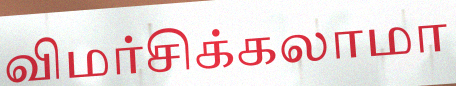
விமர்சிக்கலாமா